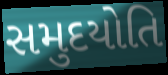
સમુદયોતિ